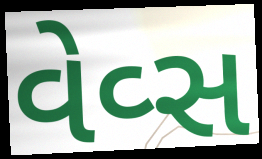
વેવ્સ